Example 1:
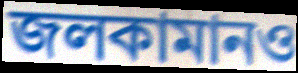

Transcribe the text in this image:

জলকামানও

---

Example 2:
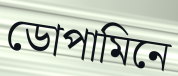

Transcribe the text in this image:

ডোপামিনে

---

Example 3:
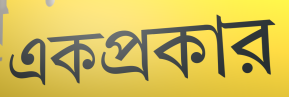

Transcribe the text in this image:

একপ্রকার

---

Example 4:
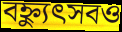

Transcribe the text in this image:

বহ্ন্যুৎসবও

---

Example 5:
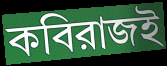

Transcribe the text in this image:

কবিরাজই